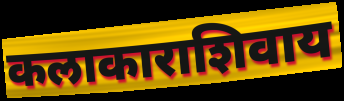
कलाकाराशिवाय